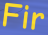
Fir